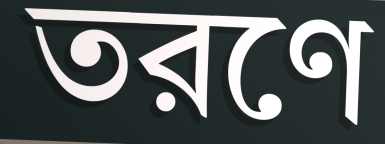
তরণে